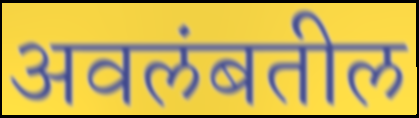
अवलंबतील